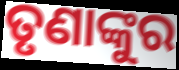
ତୃଣାଙ୍କୁର